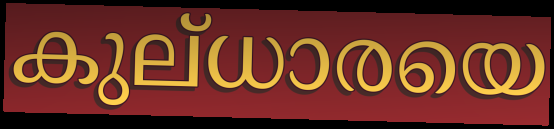
കുല്ധാരയെ